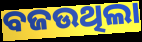
ବଜଉଥିଲା